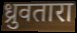
ध्रुवतारा